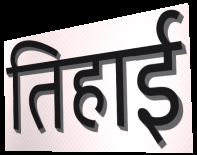
तिहाई